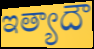
ఇత్యాదౌ